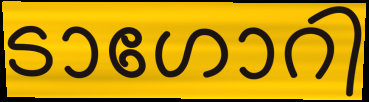
ടാഗോറി